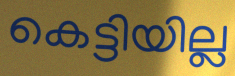
കെട്ടിയില്ല